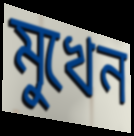
মুখেন